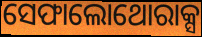
ସେଫାଲୋଥୋରାକ୍ସ